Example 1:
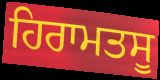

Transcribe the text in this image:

ਹਿਰਾਮਤਸੂ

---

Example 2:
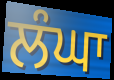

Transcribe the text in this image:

ਲੰਘਾ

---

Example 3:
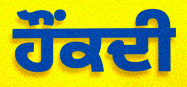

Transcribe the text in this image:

ਹੌਂਕਦੀ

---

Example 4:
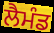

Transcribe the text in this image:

ਲੈਮੰਡ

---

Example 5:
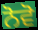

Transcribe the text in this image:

ਨੋਵੋ